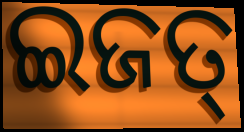
ଇଜତ୍